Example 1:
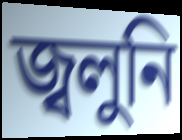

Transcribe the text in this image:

জ্বলুনি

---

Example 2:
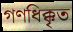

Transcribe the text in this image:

গণধিক্কৃত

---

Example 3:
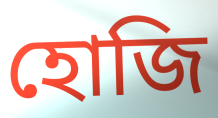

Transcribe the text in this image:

হোজি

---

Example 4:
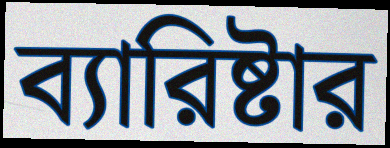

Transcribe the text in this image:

ব্যারিষ্টার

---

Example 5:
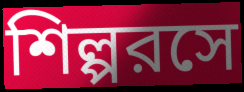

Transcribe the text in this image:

শিল্পরসে